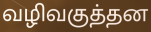
வழிவகுத்தன